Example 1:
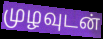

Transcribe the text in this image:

முழவுடன்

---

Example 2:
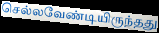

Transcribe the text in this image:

செல்லவேண்டியிருந்தது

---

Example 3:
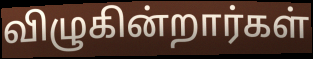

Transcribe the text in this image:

விழுகின்றார்கள்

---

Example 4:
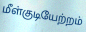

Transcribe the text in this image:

மீள்குடியேற்றம்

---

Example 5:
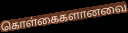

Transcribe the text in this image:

கொள்கைகளானவை